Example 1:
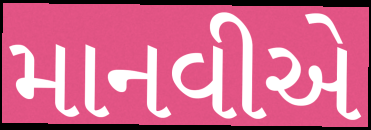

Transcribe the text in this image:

માનવીએ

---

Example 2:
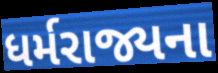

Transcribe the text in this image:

ધર્મરાજ્યના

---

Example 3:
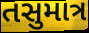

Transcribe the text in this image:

તસુમાત્ર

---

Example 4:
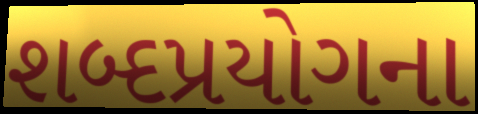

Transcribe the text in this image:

શબ્દપ્રયોગના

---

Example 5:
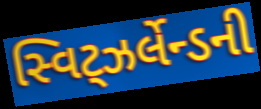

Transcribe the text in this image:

સ્વિટ્ઝર્લેન્ડની